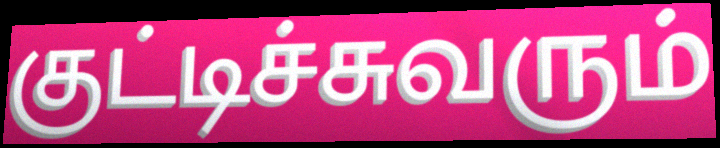
குட்டிச்சுவரும்